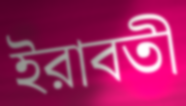
ইরাবতী